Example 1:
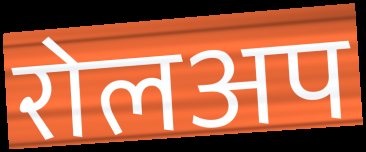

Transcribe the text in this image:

रोलअप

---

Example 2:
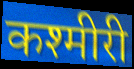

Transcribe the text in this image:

कश्मीरी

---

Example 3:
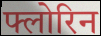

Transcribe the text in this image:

फ्लोरिन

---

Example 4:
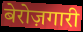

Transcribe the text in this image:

बेरोज़गारी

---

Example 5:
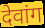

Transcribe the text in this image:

देवांग